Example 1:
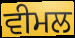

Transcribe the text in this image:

ਵੀਮਲ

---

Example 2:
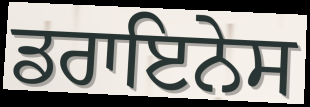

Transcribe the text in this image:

ਡਰਾਇਨੇਸ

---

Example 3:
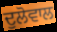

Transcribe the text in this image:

ਦੁਲੋਵਾਲ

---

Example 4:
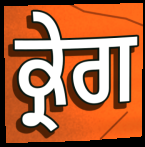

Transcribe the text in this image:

ਕ੍ਰੇਗ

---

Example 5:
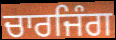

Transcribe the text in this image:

ਚਾਰਜਿੰਗ